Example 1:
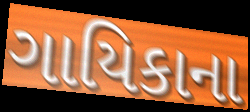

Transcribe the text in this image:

ગાયિકાના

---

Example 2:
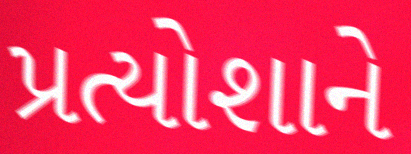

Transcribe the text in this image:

પ્રત્યોશાને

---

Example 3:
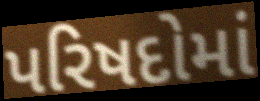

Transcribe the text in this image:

પરિષદોમાં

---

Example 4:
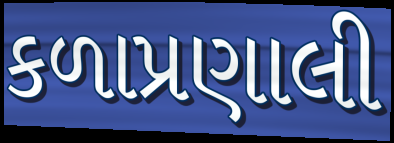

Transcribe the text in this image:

કળાપ્રણાલી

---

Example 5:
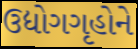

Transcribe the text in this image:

ઉદ્યોગગૃહોને